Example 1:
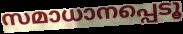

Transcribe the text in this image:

സമാധാനപ്പെടൂ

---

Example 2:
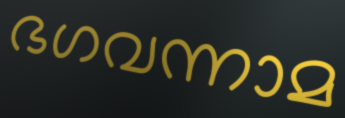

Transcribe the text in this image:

ഭഗവന്നാമ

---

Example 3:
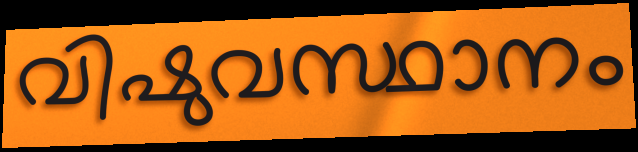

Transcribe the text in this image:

വിഷുവസ്ഥാനം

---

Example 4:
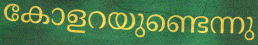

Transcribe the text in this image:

കോളറയുണ്ടെന്നു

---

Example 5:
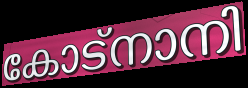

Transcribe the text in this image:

കോട്നാനി